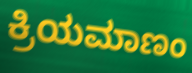
ಕ್ರಿಯಮಾಣಂ